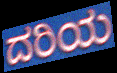
ದರಿಯ